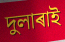
দুলাৰাই